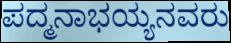
ಪದ್ಮನಾಭಯ್ಯನವರು